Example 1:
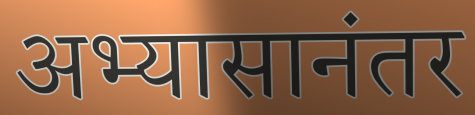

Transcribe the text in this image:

अभ्यासानंतर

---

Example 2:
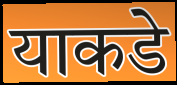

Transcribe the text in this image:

याकडे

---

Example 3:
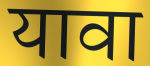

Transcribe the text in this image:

यावा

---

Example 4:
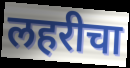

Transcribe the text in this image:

लहरीचा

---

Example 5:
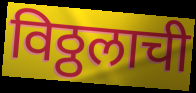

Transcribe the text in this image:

विठ्ठलाची